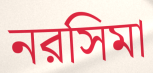
নরসিমা